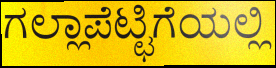
ಗಲ್ಲಾಪೆಟ್ಟಿಗೆಯಲ್ಲಿ